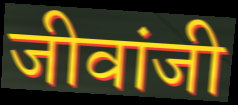
जीवांजी